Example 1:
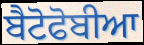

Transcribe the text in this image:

ਬੈਟੋਫੋਬੀਆ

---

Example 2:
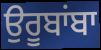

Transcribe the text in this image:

ਉਰੂਬਾਂਬਾ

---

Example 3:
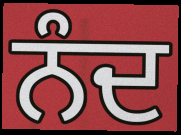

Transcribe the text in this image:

ਨੰਦ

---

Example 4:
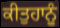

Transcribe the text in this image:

ਕੀਤੁਹਾਨੂੰ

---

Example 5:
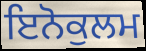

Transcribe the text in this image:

ਇਨੋਕੁਲਮ